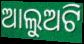
ଆଲୁଅଟି